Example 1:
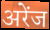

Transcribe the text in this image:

अरेंज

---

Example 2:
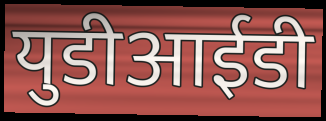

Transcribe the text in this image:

युडीआईडी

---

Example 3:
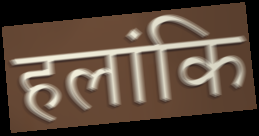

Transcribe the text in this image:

हलांकि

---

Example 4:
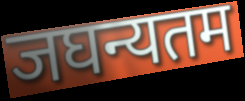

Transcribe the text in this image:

जघन्यतम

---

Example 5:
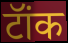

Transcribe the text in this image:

टॉंक